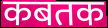
कबतक